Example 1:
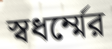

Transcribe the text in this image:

স্বধর্ম্মের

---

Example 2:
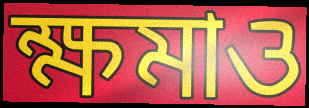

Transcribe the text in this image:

ক্ষমাও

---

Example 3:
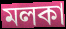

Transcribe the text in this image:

মলকা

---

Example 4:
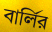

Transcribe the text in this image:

বার্লির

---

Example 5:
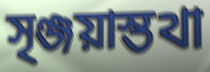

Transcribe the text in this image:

সৃঞ্জয়াস্তথা